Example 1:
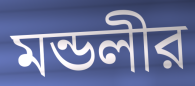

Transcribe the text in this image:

মন্ডলীর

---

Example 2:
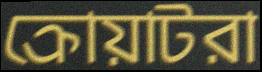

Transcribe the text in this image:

ক্রোয়াটরা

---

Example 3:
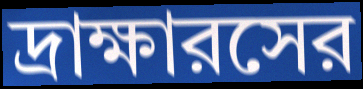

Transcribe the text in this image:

দ্রাক্ষারসের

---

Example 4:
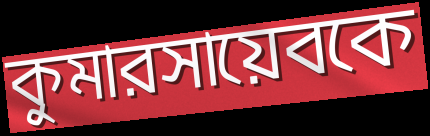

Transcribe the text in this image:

কুমারসায়েবকে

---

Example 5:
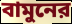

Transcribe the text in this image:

বামুনের